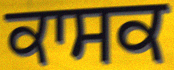
ਕਾਸਕ